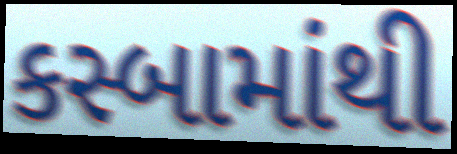
કસ્બામાંથી